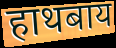
हाथबाय